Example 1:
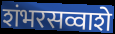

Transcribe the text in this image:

शंभरसव्वाशे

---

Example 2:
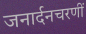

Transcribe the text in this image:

जनार्दनचरणीं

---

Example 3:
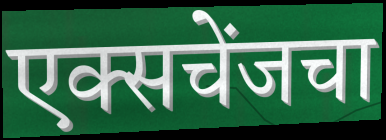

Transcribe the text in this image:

एक्सचेंजचा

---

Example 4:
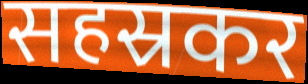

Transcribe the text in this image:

सहस्रकर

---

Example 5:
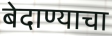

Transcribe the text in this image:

बेदाण्याचा